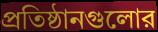
প্রতিষ্ঠানগুলোর